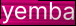
yemba